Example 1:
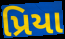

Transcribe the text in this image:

પ્રિયા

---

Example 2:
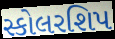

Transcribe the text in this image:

સ્કોલરશિપ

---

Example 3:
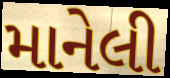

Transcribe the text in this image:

માનેલી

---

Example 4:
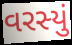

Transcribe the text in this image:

વરસ્યું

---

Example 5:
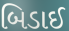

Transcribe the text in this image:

બિડાઈ